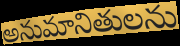
అనుమానితులను